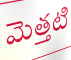
మెత్తటి